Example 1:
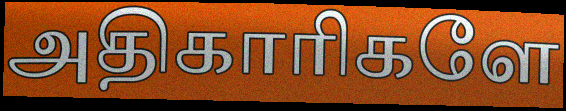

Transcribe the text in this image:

அதிகாரிகளே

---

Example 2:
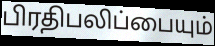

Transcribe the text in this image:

பிரதிபலிப்பையும்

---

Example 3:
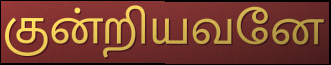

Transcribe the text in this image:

குன்றியவனே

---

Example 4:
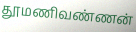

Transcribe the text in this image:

தூமணிவண்ணன்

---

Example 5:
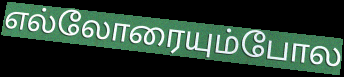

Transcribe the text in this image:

எல்லோரையும்போல